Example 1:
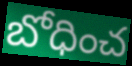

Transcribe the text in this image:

బోధించ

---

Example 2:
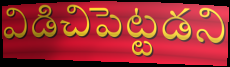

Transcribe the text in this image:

విడిచిపెట్టడని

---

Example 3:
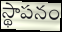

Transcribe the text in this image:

స్థాపనం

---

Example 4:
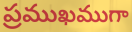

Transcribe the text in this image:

ప్రముఖముగా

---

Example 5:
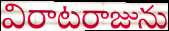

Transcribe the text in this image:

విరాటరాజును